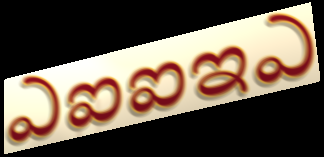
ఎఐఐఇఎ